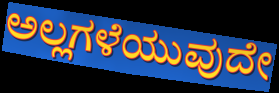
ಅಲ್ಲಗಳೆಯುವುದೇ